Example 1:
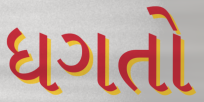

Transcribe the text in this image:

ધગતો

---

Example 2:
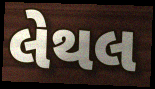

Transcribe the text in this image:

લેથલ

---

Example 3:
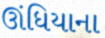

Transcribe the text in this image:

ઊંધિયાના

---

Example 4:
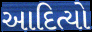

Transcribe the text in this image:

આદિત્યો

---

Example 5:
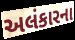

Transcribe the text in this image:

અલંકારના